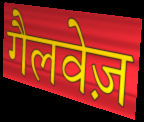
गैलवेज़